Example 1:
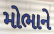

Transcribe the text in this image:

મોભાને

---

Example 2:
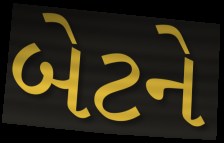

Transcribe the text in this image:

બેટને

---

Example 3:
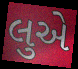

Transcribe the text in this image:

લુએ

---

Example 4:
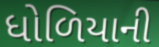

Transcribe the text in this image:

ધોળિયાની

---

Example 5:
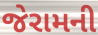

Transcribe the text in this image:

જેરામની